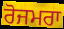
ਰੋਜਮਰਾ